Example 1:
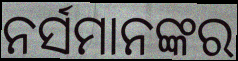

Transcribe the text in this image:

ନର୍ସମାନଙ୍କର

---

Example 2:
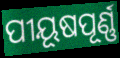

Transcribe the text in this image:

ପୀୟୂଷପୂର୍ଣ୍ଣ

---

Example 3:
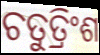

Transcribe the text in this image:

ଚତୁତ୍ରିଂଶ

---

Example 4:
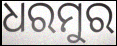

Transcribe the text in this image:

ଧରମୁର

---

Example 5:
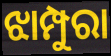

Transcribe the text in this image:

ଝାମ୍ପୁରା